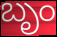
బృం